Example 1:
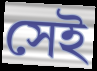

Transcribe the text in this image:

সেই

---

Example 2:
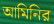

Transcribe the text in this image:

আমিনির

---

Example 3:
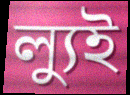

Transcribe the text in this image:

ল্যুই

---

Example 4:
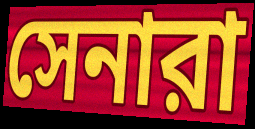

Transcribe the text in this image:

সেনারা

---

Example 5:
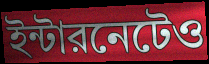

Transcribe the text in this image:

ইন্টারনেটেও